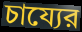
চায্যের